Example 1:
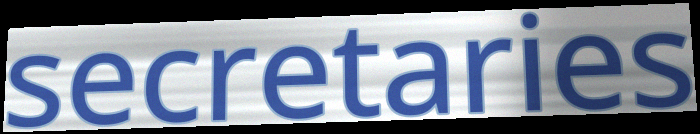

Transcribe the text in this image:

secretaries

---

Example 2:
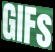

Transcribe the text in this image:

GIFs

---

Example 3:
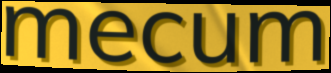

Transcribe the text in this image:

mecum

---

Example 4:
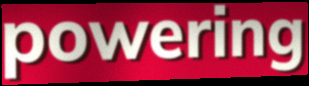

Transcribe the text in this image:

powering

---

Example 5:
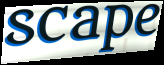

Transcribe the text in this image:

scape